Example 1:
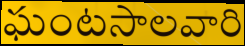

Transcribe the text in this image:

ఘంటసాలవారి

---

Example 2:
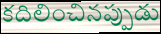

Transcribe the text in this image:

కదిలించినప్పుడు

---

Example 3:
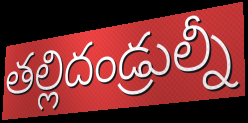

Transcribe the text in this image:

తల్లిదండ్రుల్నీ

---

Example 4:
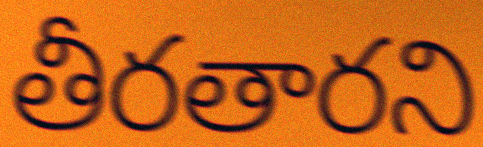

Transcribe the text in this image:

తీరతారని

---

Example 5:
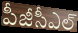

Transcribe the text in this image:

పీజీసీఎల్